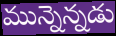
మున్నెన్నడు